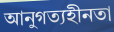
আনুগত্যহীনতা